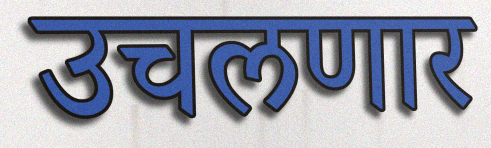
उचलणार